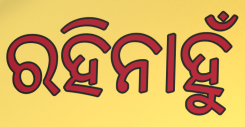
ରହିନାହୁଁ